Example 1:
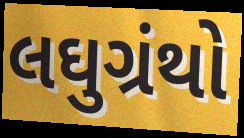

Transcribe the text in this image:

લઘુગ્રંથો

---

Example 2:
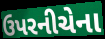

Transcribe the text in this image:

ઉપરનીચેના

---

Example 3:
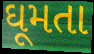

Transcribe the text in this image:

ઘૂમતા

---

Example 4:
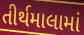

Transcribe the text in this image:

તીર્થમાલામાં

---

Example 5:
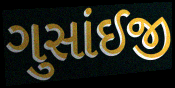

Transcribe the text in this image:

ગુસાંઈજી